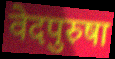
वेदपुरुषा